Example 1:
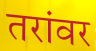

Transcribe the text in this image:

तरांवर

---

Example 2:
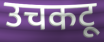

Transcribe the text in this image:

उचकटू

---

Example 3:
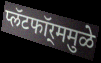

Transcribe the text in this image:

प्लॅटफॉर्ममुळे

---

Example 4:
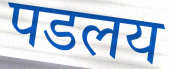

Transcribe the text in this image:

पडलय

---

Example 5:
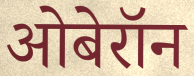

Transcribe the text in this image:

ओबेरॉन